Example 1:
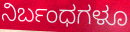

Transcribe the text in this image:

ನಿರ್ಬಂಧಗಳೂ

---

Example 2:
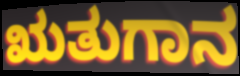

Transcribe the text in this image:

ಋತುಗಾನ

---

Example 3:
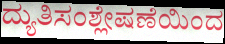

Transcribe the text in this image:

ದ್ಯುತಿಸಂಶ್ಲೇಷಣೆಯಿಂದ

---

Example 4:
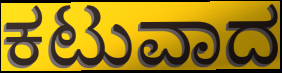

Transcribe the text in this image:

ಕಟುವಾದ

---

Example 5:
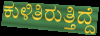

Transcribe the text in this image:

ಕುಳಿತಿರುತ್ತಿದ್ದೆ